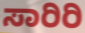
ಸಾರಿರಿ